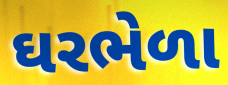
ઘરભેળા